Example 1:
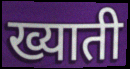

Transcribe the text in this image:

ख्याती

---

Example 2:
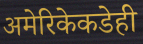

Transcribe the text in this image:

अमेरिकेकडेही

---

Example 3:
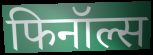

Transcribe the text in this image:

फिनॉल्स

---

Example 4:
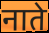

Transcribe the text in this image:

नाते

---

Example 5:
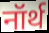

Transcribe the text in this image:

नॉर्थ